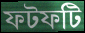
ফটফটি